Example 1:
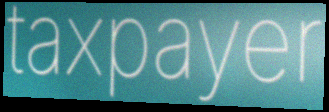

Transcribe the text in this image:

taxpayer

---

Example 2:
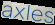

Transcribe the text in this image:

axles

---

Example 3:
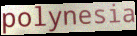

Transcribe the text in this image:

polynesia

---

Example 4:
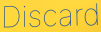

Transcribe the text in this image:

Discard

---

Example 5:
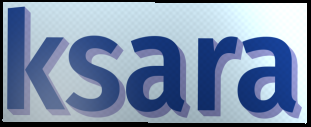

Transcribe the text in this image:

ksara